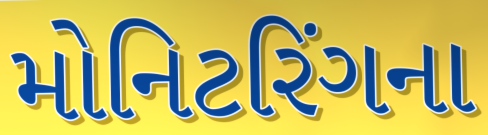
મોનિટરિંગના